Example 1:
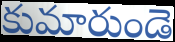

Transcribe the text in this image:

కుమారుండె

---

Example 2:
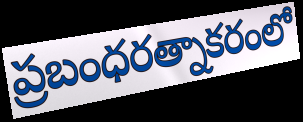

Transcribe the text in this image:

ప్రబంధరత్నాకరంలో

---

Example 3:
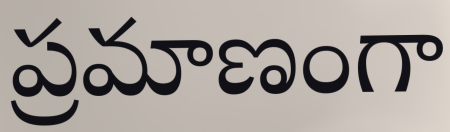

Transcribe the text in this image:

ప్రమాణంగా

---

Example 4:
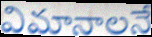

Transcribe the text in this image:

విమానాలనే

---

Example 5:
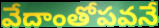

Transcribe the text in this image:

వేదాంతోపవనే